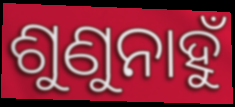
ଶୁଣୁନାହୁଁ